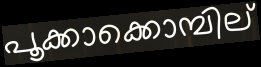
പൂക്കാക്കൊമ്പില്